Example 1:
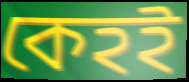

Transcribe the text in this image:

কেহই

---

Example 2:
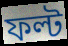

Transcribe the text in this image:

ফল্ট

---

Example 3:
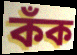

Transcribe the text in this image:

কঁক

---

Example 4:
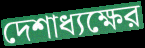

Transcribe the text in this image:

দেশাধ্যক্ষের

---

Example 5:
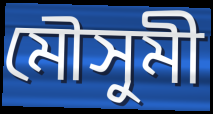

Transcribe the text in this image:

মৌসুমী